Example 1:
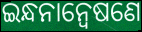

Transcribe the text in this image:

ଇନ୍ଧନାନ୍ଵେଷଣେ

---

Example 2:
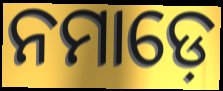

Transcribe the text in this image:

ନମାଡ଼େ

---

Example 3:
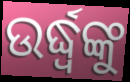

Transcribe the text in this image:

ଉର୍ଦ୍ଧ୍ୱଙ୍କୁ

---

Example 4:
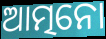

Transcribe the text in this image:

ଆତ୍ମନୋ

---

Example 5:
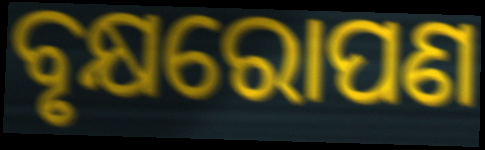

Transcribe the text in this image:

ବୃକ୍ଷରୋପଣ